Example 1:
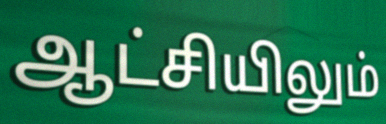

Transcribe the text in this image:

ஆட்சியிலும்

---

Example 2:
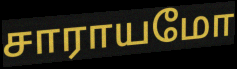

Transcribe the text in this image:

சாராயமோ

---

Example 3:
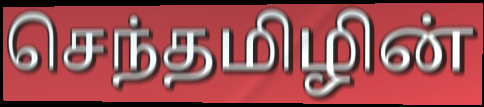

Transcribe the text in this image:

செந்தமிழின்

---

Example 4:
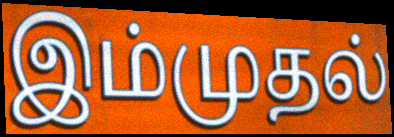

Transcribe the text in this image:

இம்முதல்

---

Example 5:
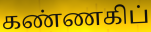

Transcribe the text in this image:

கண்ணகிப்